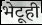
भेटूही